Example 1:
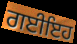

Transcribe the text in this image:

ਗਈਇਹ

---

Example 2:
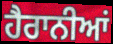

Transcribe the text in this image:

ਹੈਰਾਨੀਆਂ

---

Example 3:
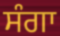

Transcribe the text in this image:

ਸੰਗਾ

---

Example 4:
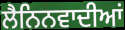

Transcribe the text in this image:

ਲੈਨਿਨਵਾਦੀਆਂ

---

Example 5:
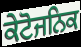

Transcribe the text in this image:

ਕੇਟੋਜਨਿਕ